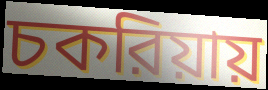
চকরিয়ায়